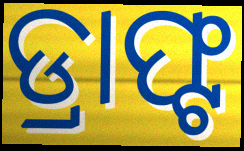
ଡ୍ରାଫ୍ଟ